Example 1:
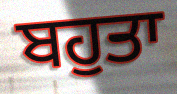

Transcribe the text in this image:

ਬਹੁਤਾ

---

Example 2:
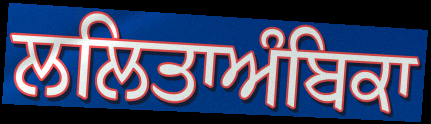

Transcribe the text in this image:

ਲਲਿਤਾਅੰਬਿਕਾ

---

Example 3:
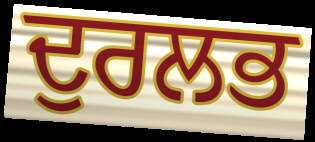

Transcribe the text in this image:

ਦੁਰਲਭ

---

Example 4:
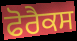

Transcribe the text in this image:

ਫੋਰੈਕਸ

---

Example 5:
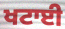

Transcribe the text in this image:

ਖਟਾਈ